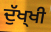
ਦੁੱਖ੍ਖੀ